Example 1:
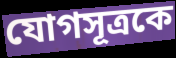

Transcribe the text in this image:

যোগসূত্রকে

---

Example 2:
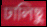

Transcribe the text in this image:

ঢালিছু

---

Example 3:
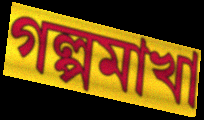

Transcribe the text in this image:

গল্পমাখা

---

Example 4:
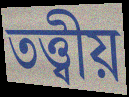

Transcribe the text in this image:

তত্ত্বীয়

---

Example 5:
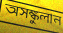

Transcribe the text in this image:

অসঙ্কুলান